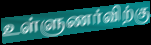
உள்ளுணர்விற்கு